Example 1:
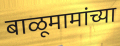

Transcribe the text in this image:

बाळूमामांच्या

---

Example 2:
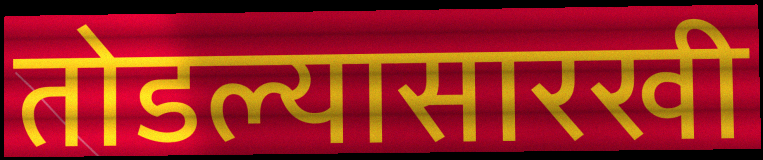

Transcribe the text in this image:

तोडल्यासारखी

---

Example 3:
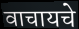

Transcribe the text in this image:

वाचायचे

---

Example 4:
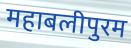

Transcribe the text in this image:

महाबलीपुरम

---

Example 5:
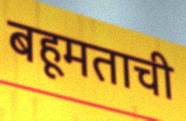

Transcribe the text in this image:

बहूमताची